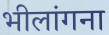
भीलांगना